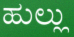
ಹುಲ್ಲು